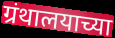
ग्रंथालयाच्या